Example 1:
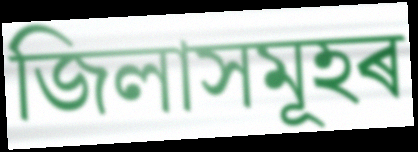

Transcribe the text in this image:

জিলাসমূহৰ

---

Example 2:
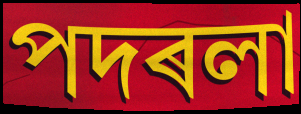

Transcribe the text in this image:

পদৰলা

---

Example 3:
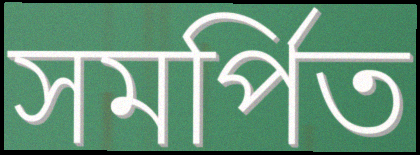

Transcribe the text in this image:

সমৰ্পিত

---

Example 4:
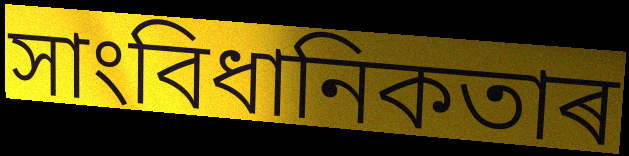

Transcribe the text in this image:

সাংবিধানিকতাৰ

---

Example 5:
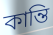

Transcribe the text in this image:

কান্তি